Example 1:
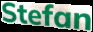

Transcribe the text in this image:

Stefan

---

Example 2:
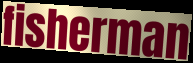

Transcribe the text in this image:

fisherman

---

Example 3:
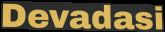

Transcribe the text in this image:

Devadasi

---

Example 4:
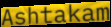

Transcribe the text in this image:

Ashtakam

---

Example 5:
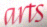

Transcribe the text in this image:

arts